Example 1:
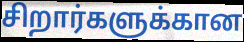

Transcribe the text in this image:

சிறார்களுக்கான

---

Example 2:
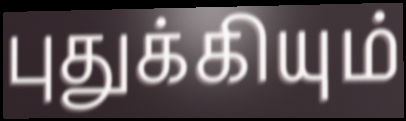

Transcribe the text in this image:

புதுக்கியும்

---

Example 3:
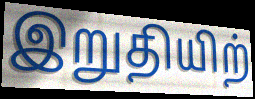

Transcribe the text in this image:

இறுதியிற்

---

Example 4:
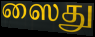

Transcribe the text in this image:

ஸைது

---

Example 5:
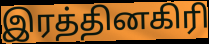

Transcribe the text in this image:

இரத்தினகிரி